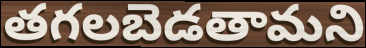
తగలబెడతామని